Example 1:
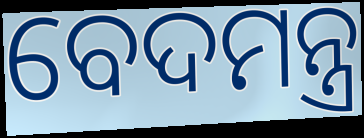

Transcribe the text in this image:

ବେଦମନ୍ତ୍ର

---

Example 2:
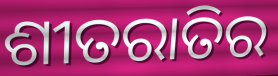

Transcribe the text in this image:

ଶୀତରାତିର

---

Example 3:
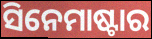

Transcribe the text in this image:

ସିନେମାଷ୍ଟାର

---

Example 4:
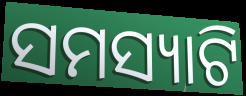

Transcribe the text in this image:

ସମସ୍ୟାଟି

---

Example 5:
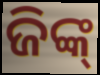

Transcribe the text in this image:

ଜିଙ୍କ୍